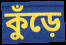
কুঁড়ে